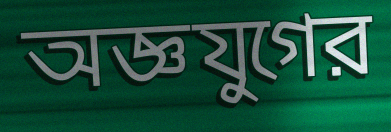
অজ্ঞযুগের